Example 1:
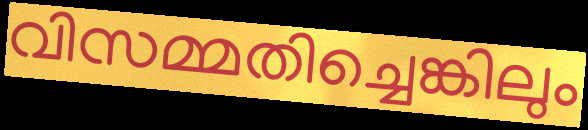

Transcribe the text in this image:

വിസമ്മതിച്ചെങ്കിലും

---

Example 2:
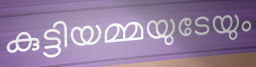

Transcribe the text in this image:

കുട്ടിയമ്മയുടേയും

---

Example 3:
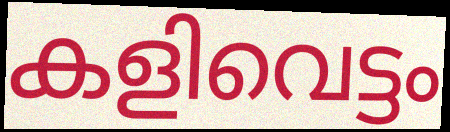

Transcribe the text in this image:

കളിവെട്ടം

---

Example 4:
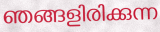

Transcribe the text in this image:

ഞങ്ങളിരിക്കുന്ന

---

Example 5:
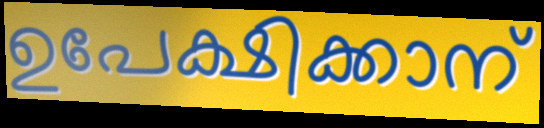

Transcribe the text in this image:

ഉപേക്ഷിക്കാന്